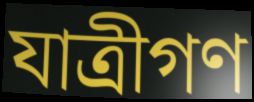
যাত্রীগণ